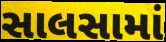
સાલસામાં